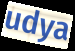
udya